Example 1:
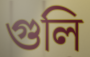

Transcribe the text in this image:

গুলি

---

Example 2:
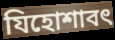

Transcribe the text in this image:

যিহোশাবৎ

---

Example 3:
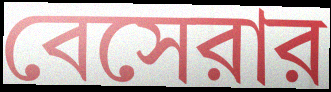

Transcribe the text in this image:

বেসেরার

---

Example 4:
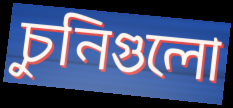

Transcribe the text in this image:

চুনিগুলো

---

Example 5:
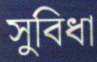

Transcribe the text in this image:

সুবিধা